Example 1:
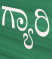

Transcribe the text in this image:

ಗ್ಯಾರಿ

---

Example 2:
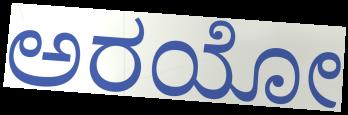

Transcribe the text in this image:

ಅರಯೋ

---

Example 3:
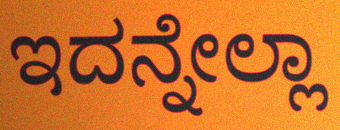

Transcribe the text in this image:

ಇದನ್ನೇಲ್ಲಾ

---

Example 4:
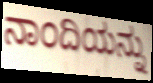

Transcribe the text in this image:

ನಾಂದಿಯನ್ನು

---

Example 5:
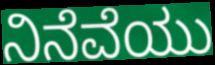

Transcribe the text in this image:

ನಿನೆವೆಯು